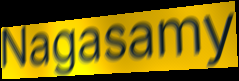
Nagasamy